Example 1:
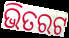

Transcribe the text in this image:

ଭିତରଟ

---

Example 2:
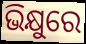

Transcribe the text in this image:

ଭିକ୍ଷୁରେ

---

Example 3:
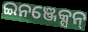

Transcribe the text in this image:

ଇନଞ୍ଜେକ୍ସନ୍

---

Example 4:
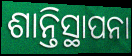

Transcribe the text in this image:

ଶାନ୍ତିସ୍ଥାପନା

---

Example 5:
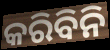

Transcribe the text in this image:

କରିବିନି